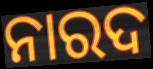
ନାରଦ